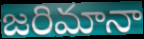
జరిమానా